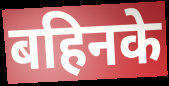
बहिनके